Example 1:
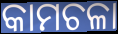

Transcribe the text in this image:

କାମଚଳା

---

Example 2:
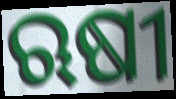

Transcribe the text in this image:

ଋଷୀ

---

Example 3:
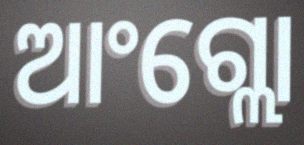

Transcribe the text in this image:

ଆଂଗ୍ଲୋ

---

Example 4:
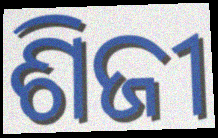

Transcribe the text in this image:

ଶିଜୀ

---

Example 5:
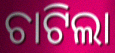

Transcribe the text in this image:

ଚାଟିଲା